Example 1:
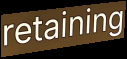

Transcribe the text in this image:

retaining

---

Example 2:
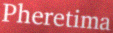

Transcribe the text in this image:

Pheretima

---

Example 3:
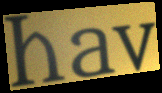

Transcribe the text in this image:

hav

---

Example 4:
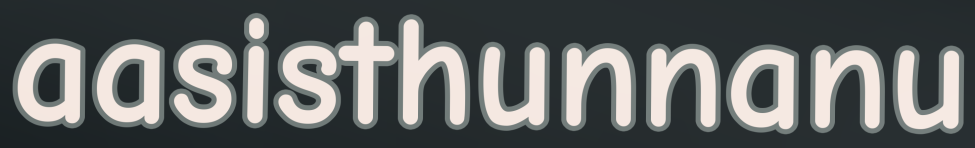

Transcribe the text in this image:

aasisthunnanu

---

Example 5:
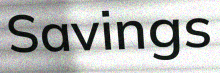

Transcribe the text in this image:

Savings